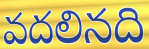
వదలినది